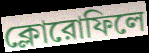
ক্লোরোফিলে